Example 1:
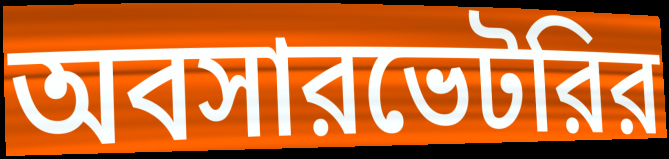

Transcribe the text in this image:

অবসারভেটরির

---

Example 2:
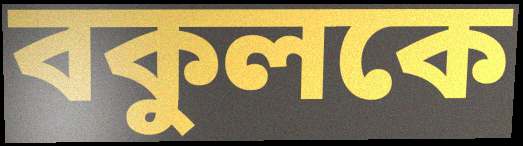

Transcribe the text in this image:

বকুলকে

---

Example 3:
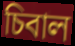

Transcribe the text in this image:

চিবাল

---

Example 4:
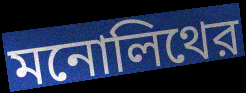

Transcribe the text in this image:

মনোলিথের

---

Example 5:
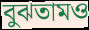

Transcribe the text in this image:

বুঝতামও